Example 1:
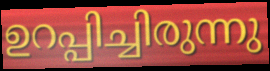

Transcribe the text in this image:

ഉറപ്പിച്ചിരുന്നു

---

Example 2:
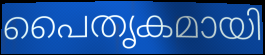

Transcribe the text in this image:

പൈതൃകമായി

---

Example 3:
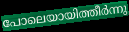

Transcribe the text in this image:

പോലെയായിത്തീർന്നു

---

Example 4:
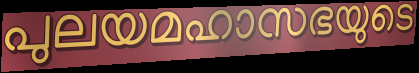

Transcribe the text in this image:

പുലയമഹാസഭയുടെ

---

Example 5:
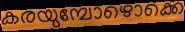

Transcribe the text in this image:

കരയുമ്പോഴൊക്കെ